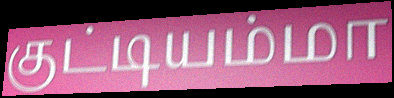
குட்டியம்மா